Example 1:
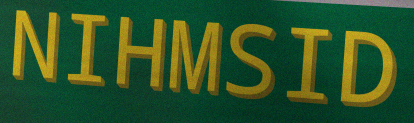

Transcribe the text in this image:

NIHMSID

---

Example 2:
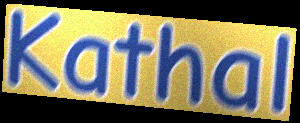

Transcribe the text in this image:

Kathal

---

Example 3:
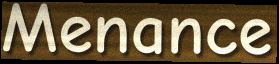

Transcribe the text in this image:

Menance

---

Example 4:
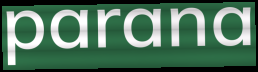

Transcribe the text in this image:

parana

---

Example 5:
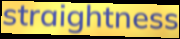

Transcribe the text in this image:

straightness